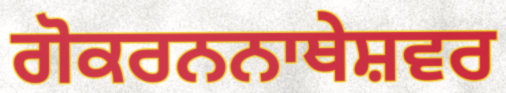
ਗੋਕਰਨਨਾਥੇਸ਼ਵਰ